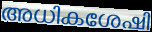
അധികശേഷി